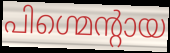
പിഗ്മെന്റായ